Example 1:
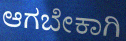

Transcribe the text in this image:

ಆಗಬೇಕಾಗಿ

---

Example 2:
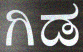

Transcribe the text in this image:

ಗಿಡ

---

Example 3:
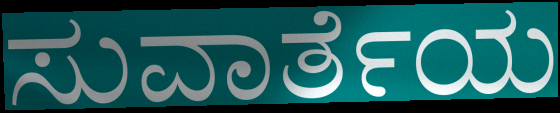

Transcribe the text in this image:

ಸುವಾರ್ತೆಯ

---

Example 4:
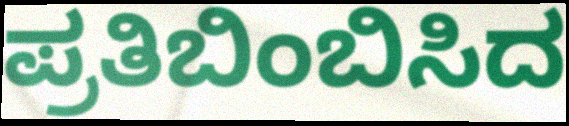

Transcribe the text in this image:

ಪ್ರತಿಬಿಂಬಿಸಿದ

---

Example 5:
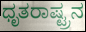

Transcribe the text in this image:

ಧೃತರಾಷ್ಟ್ರನ